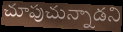
చూపుచున్నాడని